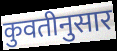
कुवतीनुसार